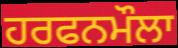
ਹਰਫਨਮੌਲਾ